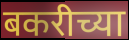
बकरीच्या